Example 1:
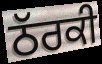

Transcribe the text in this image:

ਠੱਰਕੀ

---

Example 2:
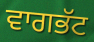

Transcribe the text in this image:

ਵਾਗਭੱਟ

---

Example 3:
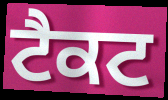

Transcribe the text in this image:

ਟੈਕਟ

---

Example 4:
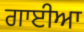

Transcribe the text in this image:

ਗਾਈਆ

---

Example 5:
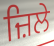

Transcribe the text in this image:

ਜ਼ਿਲੇ